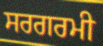
ਸਰਗਰਮੀ